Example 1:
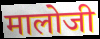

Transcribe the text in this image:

मालोजी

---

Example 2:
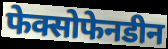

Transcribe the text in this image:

फेक्सोफेनडीन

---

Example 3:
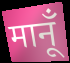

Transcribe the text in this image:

मानूँ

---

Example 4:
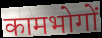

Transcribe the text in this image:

कामभोगों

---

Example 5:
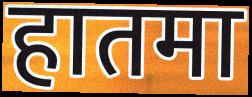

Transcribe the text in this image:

हातमा